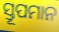
ସ୍ତୂପମାନ